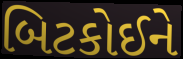
બિટકોઈને